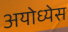
अयोध्येस